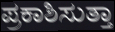
ಪ್ರಕಾಶಿಸುತ್ತಾ